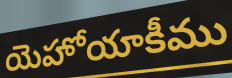
యెహోయాకీము